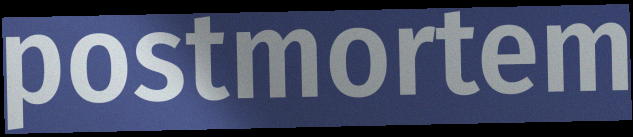
postmortem